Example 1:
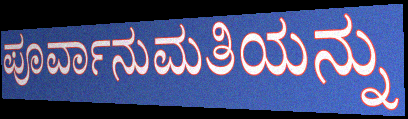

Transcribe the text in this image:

ಪೂರ್ವಾನುಮತಿಯನ್ನು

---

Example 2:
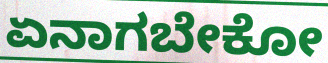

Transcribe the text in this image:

ಏನಾಗಬೇಕೋ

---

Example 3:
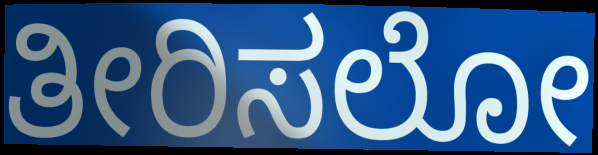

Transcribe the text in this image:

ತೀರಿಸಲೋ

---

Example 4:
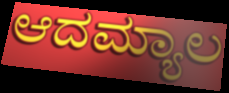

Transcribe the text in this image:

ಆದಮ್ಯಾಲ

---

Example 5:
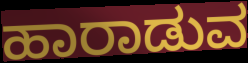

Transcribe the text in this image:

ಹಾರಾಡುವ